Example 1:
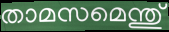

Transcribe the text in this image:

താമസമെന്തു്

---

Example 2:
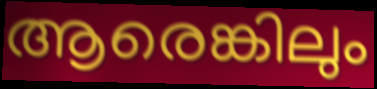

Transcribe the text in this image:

ആരെങ്കിലും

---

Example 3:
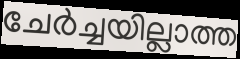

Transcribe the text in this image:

ചേർച്ചയില്ലാത്ത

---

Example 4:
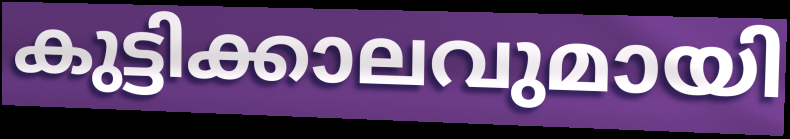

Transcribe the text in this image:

കുട്ടിക്കാലവുമായി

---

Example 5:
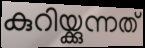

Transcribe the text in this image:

കുറിയ്ക്കുന്നത്